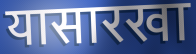
यासारखा